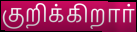
குறிக்கிறார்